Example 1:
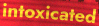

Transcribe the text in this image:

intoxicated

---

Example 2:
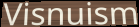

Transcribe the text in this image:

Visnuism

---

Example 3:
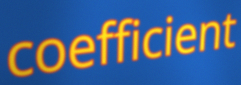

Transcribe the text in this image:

coefficient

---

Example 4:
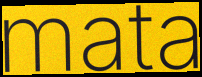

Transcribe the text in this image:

mata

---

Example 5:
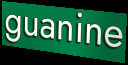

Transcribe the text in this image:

guanine